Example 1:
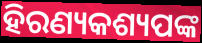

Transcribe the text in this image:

ହିରଣ୍ୟକଶ୍ୟପଙ୍କ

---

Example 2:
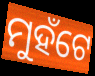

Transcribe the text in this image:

ମୁହଁଟେ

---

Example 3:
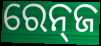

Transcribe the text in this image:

ରେନ୍‍ଜ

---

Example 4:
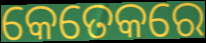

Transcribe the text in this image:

କେତେକରେ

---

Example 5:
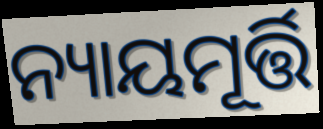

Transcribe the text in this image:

ନ୍ୟାୟମୂର୍ତ୍ତି